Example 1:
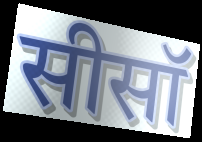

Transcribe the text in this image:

सीसॉ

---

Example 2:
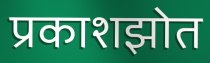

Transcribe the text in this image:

प्रकाशझोत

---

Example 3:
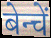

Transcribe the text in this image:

बेन्चें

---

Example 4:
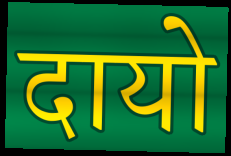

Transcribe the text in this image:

दायो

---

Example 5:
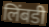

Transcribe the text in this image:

लिंबडी